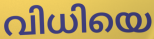
വിധിയെ